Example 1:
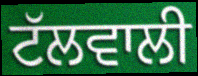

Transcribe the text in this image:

ਟੱਲਵਾਲੀ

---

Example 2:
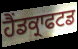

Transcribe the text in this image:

ਹੈਂਡਕ੍ਰਾਫਟਡ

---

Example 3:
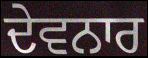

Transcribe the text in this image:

ਦੇਵਨਾਰ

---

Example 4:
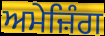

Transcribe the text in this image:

ਅਮੇਜ਼ਿੰਗ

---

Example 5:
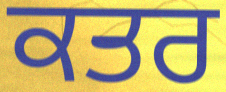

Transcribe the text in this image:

ਕਤਰ